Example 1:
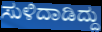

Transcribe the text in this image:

ಸುಳಿದಾಡಿದ್ದು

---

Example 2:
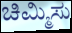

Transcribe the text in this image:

ಚಿಮ್ಮಿಸು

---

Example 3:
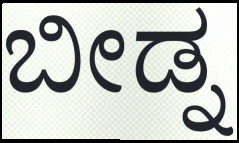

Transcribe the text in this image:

ಬೀಡ್ನ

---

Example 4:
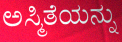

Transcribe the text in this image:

ಅಸ್ಮಿತೆಯನ್ನು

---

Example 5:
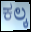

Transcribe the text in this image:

ಕಲ್ಕ